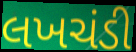
લખચંડી